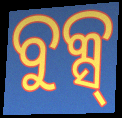
ବୁକ୍ସ୍